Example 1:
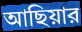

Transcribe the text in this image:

আছিয়ার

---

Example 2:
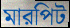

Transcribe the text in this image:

মারপিট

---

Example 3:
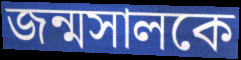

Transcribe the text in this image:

জন্মসালকে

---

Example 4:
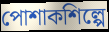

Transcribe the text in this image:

পোশাকশিল্পে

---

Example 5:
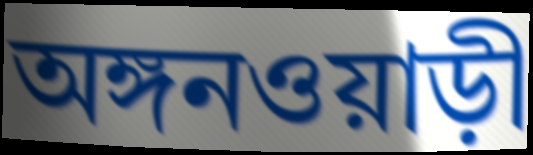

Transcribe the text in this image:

অঙ্গনওয়াড়ী